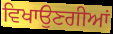
ਵਿਖਾਉਣਗੀਆਂ